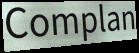
Complan